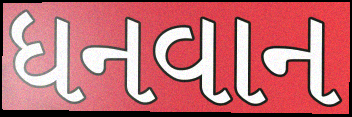
ધનવાન